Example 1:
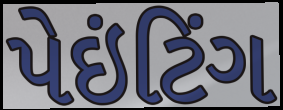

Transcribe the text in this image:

પેઇંટિંગ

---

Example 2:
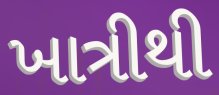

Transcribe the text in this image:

ખાત્રીથી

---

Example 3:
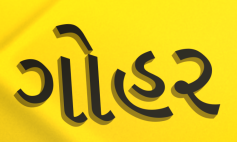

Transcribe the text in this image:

ગોહર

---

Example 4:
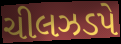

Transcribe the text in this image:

ચીલઝડપે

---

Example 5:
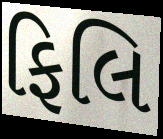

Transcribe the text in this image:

ફિલિ